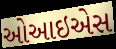
ઓઆઇએસ